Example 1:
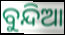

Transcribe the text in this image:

ବୁନ୍ଦିଆ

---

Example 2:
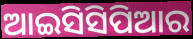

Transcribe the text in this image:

ଆଇସିସିପିଆର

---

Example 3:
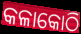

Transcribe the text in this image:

କଳାକୋଠି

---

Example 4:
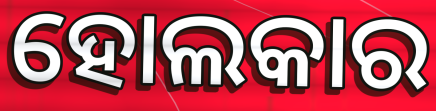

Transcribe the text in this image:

ହୋଲକାର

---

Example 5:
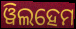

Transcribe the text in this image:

ୱିଲହେମ